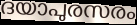
ദയാപുരസരം